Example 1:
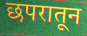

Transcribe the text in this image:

छपरातून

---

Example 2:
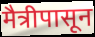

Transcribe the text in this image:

मैत्रीपासून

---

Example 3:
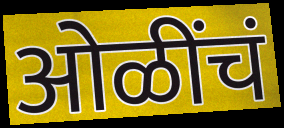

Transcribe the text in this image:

ओळींचं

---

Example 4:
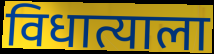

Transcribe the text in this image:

विधात्याला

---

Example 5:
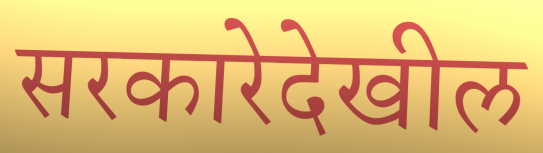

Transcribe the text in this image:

सरकारेदेखील